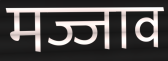
मज्जाव